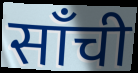
साँची